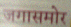
जगासमोर